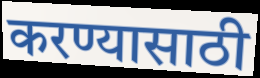
करण्‍यासाठी